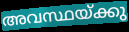
അവസ്ഥയ്ക്കു